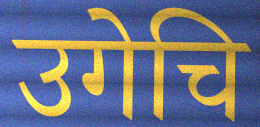
उगेचि